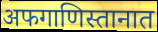
अफगाणिस्तानात